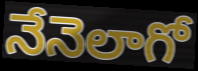
నేనెలాగో